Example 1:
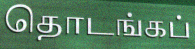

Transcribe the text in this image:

தொடங்கப்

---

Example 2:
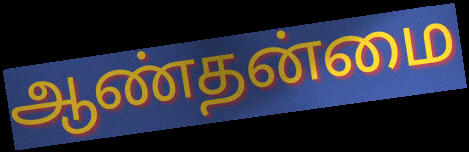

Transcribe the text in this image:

ஆண்தன்மை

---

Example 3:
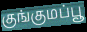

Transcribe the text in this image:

குங்குமப்பூ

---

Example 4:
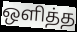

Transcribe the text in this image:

ஒளித்த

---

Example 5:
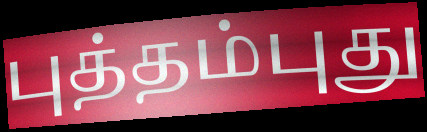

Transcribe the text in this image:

புத்தம்புது